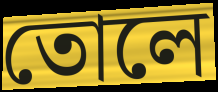
তোলে